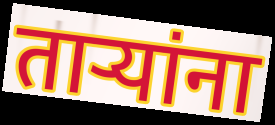
तार्‍यांना